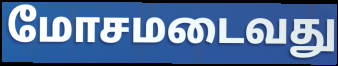
மோசமடைவது